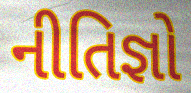
નીતિજ્ઞો